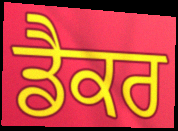
ਡੈਕਰ